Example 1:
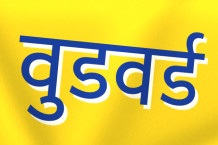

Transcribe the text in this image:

वुडवर्ड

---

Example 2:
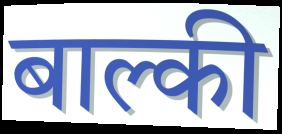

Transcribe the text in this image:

बाल्‍की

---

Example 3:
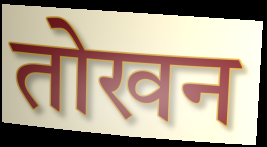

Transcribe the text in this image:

तोखन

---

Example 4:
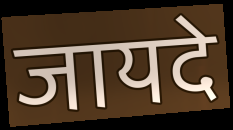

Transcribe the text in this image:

जायदे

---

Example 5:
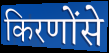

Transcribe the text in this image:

किरणोंसे